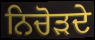
ਨਿਚੋੜਦੇ